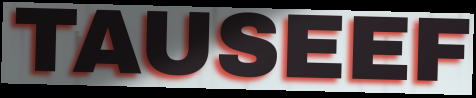
TAUSEEF